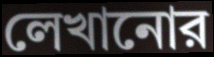
লেখানোর